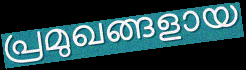
പ്രമുഖങ്ങളായ